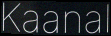
Kaanal